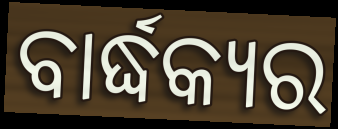
ବାର୍ଦ୍ଧକ୍ୟର